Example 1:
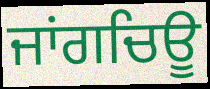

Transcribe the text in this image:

ਜਾਂਗਚਿਊ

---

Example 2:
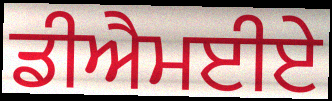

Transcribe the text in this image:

ਡੀਐਮਈਏ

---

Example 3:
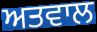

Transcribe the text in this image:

ਅਤਵਾਲ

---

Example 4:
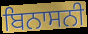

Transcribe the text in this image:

ਬਿਨਾਸਨੀ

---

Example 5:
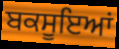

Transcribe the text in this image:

ਬਕਸੂਇਆਂ